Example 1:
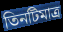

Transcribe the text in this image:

তিনটিমাত্র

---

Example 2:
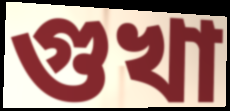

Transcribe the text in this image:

গুখা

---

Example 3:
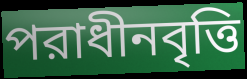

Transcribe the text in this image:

পরাধীনবৃত্তি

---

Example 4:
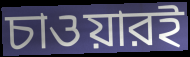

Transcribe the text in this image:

চাওয়ারই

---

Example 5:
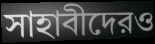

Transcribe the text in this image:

সাহাবীদেরও